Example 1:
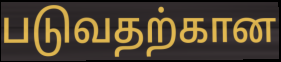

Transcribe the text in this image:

படுவதற்கான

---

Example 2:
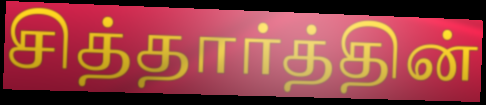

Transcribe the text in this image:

சித்தார்த்தின்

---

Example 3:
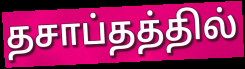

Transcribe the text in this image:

தசாப்தத்தில்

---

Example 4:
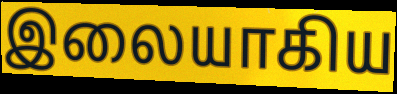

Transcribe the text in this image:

இலையாகிய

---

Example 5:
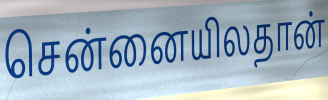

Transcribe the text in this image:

சென்னையிலதான்